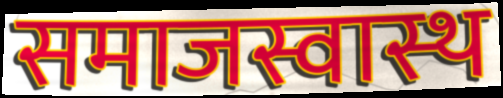
समाजस्वास्थ